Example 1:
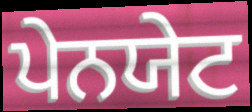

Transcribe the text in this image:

ਪੇਨਯੇਟ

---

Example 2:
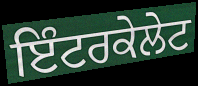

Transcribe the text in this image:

ਇੰਟਰਕੇਲੇਟ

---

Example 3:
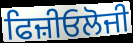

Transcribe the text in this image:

ਫਿਜ਼ੀਓਲੋਜੀ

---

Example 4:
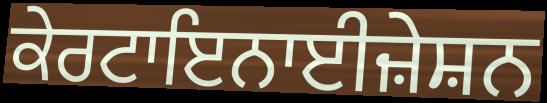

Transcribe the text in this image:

ਕੇਰਟਾਇਨਾਈਜ਼ੇਸ਼ਨ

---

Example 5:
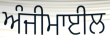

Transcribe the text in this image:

ਅੰਜੀਮਾਈਲ